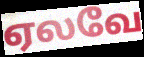
ஏலவே